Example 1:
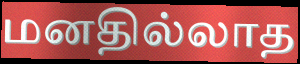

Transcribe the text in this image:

மனதில்லாத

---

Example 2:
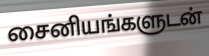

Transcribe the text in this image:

சைனியங்களுடன்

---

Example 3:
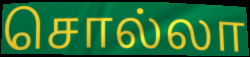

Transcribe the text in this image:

சொல்லா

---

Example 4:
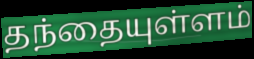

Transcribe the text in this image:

தந்தையுள்ளம்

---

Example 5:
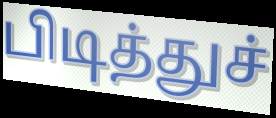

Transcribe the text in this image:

பிடித்துச்